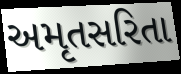
અમૃતસરિતા